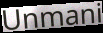
Unmani